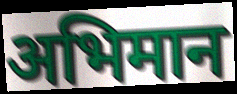
अभिमान